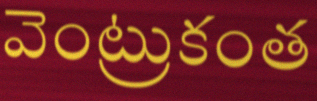
వెంట్రుకంత